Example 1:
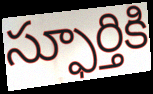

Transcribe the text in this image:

స్ఫూర్తికి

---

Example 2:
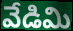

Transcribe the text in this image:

వేడిమి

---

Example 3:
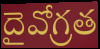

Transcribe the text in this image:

దైవోగ్రత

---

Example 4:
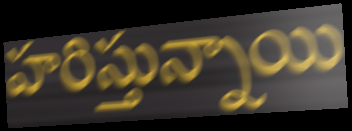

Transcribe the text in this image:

హరిస్తున్నాయి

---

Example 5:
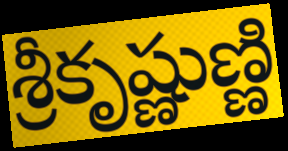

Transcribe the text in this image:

శ్రీకృష్ణుణ్ణి